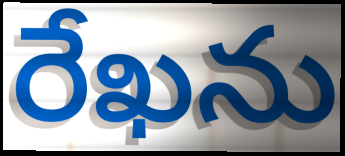
రేఖను